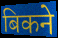
बिकने